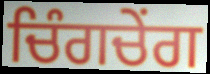
ਚਿੰਗਚੇਂਗ